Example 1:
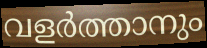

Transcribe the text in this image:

വളർത്താനും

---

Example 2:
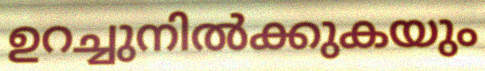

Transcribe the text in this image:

ഉറച്ചുനിൽക്കുകയും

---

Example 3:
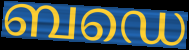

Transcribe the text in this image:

ബഡെ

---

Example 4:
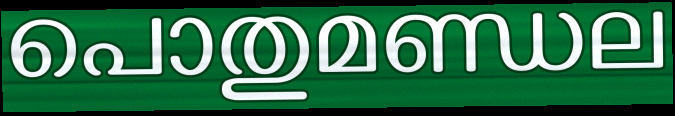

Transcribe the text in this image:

പൊതുമണ്ഡല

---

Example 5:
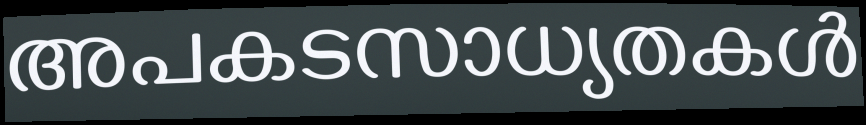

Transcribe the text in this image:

അപകടസാധ്യതകൾ